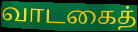
வாடகைத்